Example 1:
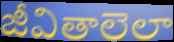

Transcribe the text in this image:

జీవితాలెలా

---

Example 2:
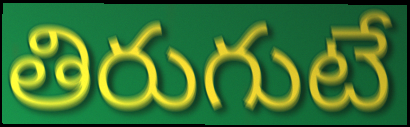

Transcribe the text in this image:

తిరుగుటే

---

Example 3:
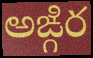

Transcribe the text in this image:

అఙ్గిర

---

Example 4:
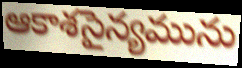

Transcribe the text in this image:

ఆకాశసైన్యమును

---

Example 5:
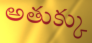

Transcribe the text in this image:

అతుక్కు